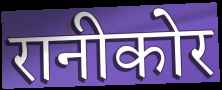
रानीकोर